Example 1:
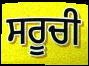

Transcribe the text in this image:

ਸਰੂਚੀ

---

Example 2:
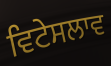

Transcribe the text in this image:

ਵਿਟੇਸਲਾਵ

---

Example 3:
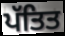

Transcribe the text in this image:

ਪੱਤਿਤ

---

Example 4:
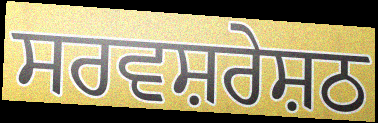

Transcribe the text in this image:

ਸਰਵਸ਼ਰੇਸ਼ਠ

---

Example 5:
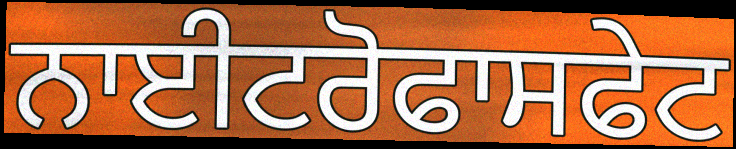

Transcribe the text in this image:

ਨਾਈਟਰੋਫਾਸਫੇਟ